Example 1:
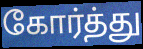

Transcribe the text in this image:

கோர்த்து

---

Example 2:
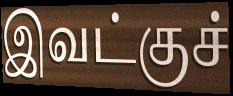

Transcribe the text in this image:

இவட்குச்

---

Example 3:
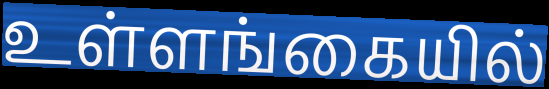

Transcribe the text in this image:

உள்ளங்கையில்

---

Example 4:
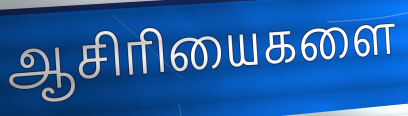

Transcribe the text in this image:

ஆசிரியைகளை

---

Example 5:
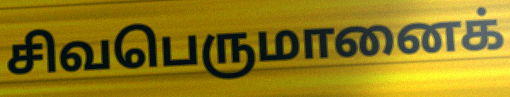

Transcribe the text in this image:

சிவபெருமானைக்